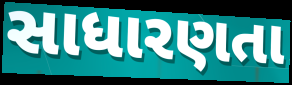
સાધારણતા